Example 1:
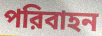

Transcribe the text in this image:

পরিবাহন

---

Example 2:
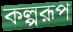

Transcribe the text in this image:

কল্পরূপ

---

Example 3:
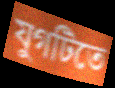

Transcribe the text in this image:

যুগটিতে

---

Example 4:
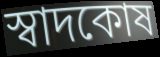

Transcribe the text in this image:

স্বাদকোষ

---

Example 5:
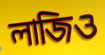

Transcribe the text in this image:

লাজিও